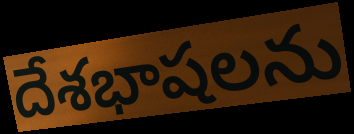
దేశభాషలను